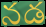
నడ